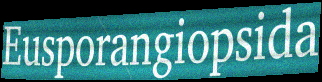
Eusporangiopsida